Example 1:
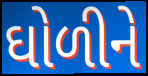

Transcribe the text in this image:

ઘોળીને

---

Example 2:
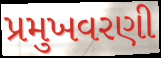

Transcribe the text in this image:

પ્રમુખવરણી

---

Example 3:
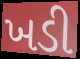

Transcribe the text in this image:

ખડી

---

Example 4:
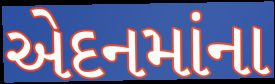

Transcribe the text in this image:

એદનમાંના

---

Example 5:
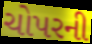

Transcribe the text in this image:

ચોપરની